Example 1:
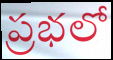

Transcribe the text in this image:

ప్రభలో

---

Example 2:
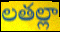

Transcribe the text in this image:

లతల్లా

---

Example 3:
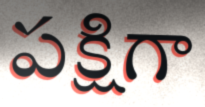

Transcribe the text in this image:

పక్షిగా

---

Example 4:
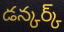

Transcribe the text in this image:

డన్కర్క్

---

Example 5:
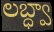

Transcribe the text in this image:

లబ్ధ్వా